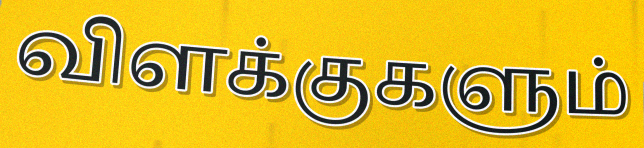
விளக்குகளும்